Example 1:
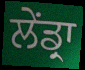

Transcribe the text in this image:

ਲੇਂਡ੍ਰਾ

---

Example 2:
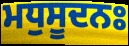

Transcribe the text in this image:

ਮਧੁਸੂਦਨਃ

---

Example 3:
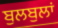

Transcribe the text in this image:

ਬੁਲਬੁਲਾਂ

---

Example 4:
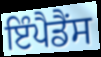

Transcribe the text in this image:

ਇੰਪੈਡੈਂਸ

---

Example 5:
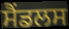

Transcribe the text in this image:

ਸੈਂਡਲਸ